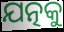
ଯତ୍ନକୁ